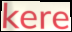
kere